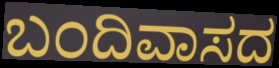
ಬಂದಿವಾಸದ